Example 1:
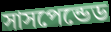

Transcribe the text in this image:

সাসপেন্ডেড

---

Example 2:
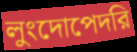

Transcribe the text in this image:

লুংদোপেদরি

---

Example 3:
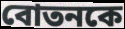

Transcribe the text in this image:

বোতনকে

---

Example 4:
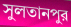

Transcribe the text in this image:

সুলতানপুর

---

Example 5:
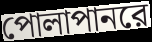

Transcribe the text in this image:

পোলাপানরে